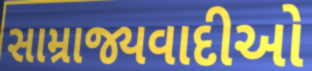
સામ્રાજ્યવાદીઓ